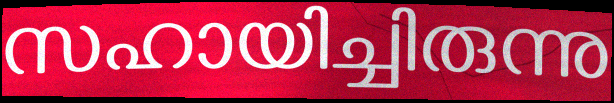
സഹായിച്ചിരുന്നു